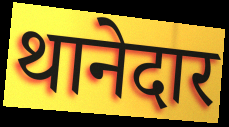
थानेदार